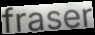
fraser